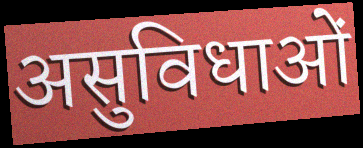
असुविधाओं